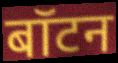
बॉटन